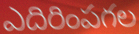
ఎదిరింపగల